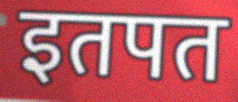
इतपत